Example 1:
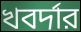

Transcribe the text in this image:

খবর্দার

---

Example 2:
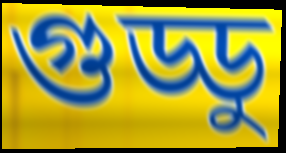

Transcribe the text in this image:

গুড্ডু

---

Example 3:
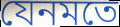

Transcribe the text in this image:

যেনমতে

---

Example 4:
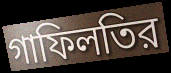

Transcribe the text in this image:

গাফিলতির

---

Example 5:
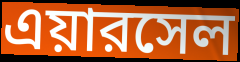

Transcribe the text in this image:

এয়ারসেল